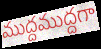
ముద్దముద్దగా